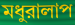
মধুরালাপ